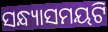
ସନ୍ଧ୍ୟାସମୟଟି